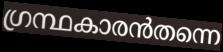
ഗ്രന്ഥകാരൻതന്നെ